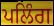
ਪਲਿੰਗ